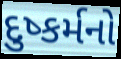
દુષ્કર્મનો